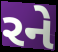
રને